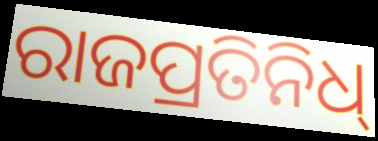
ରାଜପ୍ରତିନିଧ୍